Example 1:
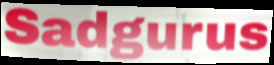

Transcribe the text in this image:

Sadgurus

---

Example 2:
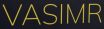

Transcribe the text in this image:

VASIMR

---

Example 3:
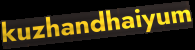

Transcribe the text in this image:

kuzhandhaiyum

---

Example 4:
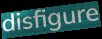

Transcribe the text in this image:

disfigure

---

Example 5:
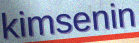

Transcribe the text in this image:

kimsenin